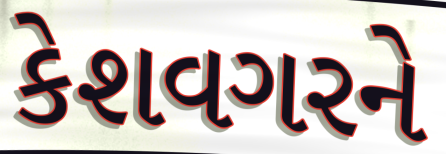
કેશવગરને